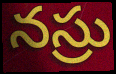
నస్రు